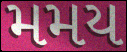
મમય